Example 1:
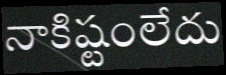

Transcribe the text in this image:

నాకిష్టంలేదు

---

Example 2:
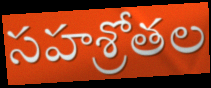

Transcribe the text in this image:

సహశ్రోతల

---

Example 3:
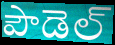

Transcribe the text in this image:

పౌడెల్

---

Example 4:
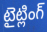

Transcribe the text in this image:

టైట్లింగ్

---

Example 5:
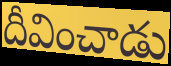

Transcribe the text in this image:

దీవించాడు